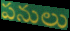
పనులు